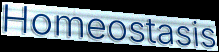
Homeostasis